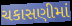
ચકાસણીમાં